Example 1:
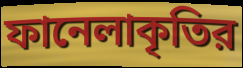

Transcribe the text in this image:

ফানেলাকৃতির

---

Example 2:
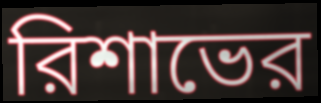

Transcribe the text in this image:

রিশাভের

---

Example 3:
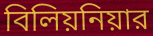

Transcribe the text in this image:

বিলিয়নিয়ার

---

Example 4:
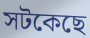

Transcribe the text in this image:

সটকেছে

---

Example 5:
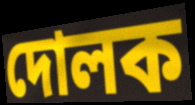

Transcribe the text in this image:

দোলক